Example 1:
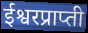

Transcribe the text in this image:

ईश्वरप्राप्ती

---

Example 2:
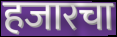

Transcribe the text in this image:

हजारचा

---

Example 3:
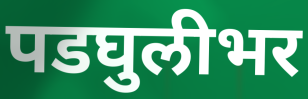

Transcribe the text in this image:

पडघुलीभर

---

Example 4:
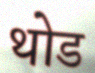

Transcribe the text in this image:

थोड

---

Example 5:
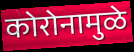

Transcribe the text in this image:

कोरोनामुळे